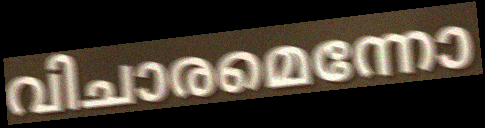
വിചാരമെന്നോ